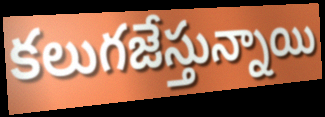
కలుగజేస్తున్నాయి